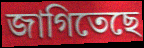
জাগিতেছে